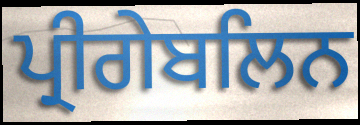
ਪ੍ਰੀਗੇਬਲਿਨ